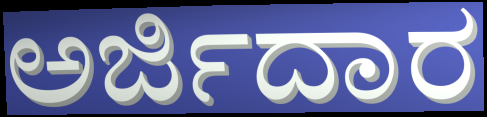
ಅರ್ಜಿದಾರ